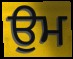
ਉਮ